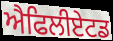
ਐਫਿਲੀਏਟਡ